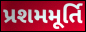
પ્રશમમૂર્તિ